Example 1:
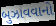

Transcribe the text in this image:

બુઝાવવાનો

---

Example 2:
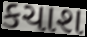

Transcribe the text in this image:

કચાશ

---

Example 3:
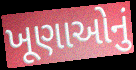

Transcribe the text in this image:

ખૂણાઓનું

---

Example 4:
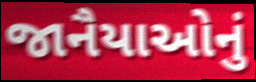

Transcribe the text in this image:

જાનૈયાઓનું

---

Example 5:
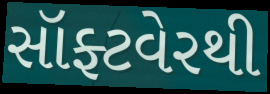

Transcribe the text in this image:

સૉફ્ટવેરથી